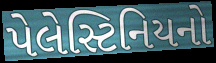
પેલેસ્ટિનિયનો